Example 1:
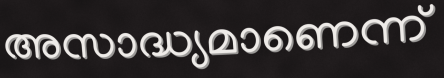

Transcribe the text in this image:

അസാദ്ധ്യമാണെന്ന്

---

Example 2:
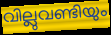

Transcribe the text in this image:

വില്ലുവണ്ടിയും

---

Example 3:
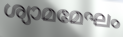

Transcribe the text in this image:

ശ്യാമമേഘം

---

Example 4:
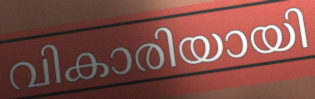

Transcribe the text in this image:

വികാരിയായി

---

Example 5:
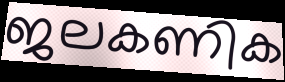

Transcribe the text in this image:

ജലകണിക